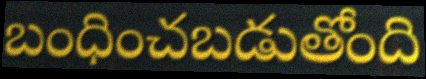
బంధించబడుతోంది